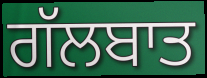
ਗੱਲਬਾਤ